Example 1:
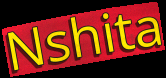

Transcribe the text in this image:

Nshita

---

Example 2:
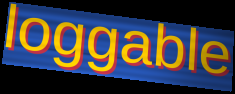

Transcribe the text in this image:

loggable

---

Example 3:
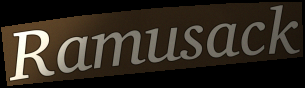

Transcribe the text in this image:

Ramusack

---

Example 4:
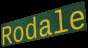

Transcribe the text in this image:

Rodale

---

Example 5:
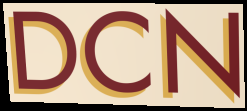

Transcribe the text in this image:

DCN